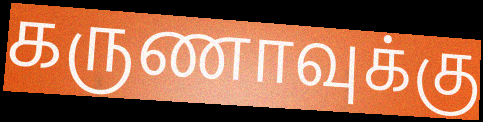
கருணாவுக்கு